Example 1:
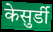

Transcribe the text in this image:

केसुर्डी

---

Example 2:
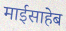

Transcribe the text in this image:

माईसाहेब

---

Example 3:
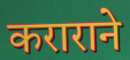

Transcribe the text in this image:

कराराने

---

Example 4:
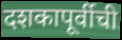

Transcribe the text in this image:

दशकापूर्वीची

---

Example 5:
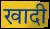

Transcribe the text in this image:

खादी